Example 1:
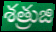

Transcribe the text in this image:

శత్రుజి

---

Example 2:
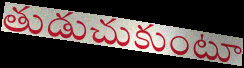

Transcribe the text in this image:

తుడుచుకుంటూ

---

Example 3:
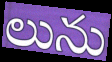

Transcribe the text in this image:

లును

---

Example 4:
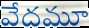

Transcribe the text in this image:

వేదమూ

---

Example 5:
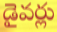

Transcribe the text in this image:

డైవర్లు